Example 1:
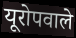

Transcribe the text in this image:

यूरोपवाले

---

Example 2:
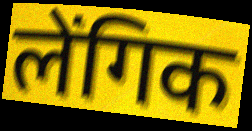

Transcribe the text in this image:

लेंगिक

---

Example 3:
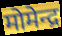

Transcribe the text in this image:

मोमेन्द्र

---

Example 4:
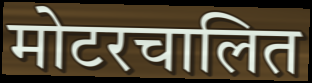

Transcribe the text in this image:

मोटरचालित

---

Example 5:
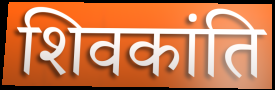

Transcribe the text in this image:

शिवकांति